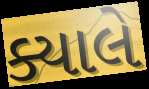
ક્યાલે